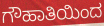
ಗೌಹಾತಿಯಿಂದ